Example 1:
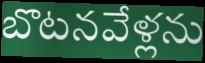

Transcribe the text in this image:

బొటనవేళ్లను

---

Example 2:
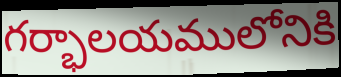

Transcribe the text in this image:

గర్భాలయములోనికి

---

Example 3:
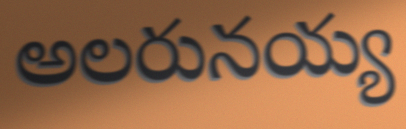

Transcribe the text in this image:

అలరునయ్య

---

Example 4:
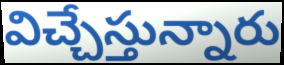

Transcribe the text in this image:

విచ్చేస్తున్నారు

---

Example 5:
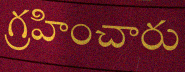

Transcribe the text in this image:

గ్రహించారు